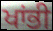
ਖਾਂਭੀ